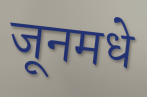
जूनमधे